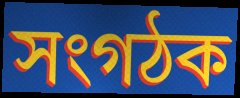
সংগঠক